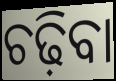
ଚଢ଼ିବା